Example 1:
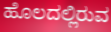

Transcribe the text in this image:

ಹೊಲದಲ್ಲಿರುವ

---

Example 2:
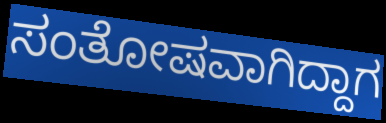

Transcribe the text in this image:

ಸಂತೋಷವಾಗಿದ್ದಾಗ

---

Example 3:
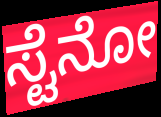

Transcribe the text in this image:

ಸ್ಟೆನೋ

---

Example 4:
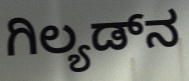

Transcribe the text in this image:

ಗಿಲ್ಯಡ್‌ನ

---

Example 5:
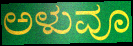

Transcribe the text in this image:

ಅಳುವೂ